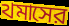
থমাসের